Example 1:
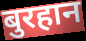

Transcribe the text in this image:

बुरहान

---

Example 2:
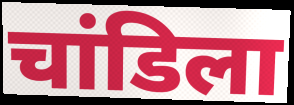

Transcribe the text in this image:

चांडिला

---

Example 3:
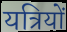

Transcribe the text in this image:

यत्रियों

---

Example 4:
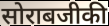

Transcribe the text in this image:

सोराबजीकी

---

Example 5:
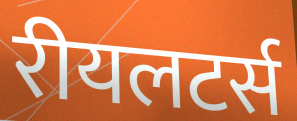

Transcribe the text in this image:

रीयलटर्स